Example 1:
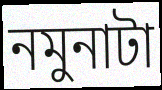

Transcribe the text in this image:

নমুনাটা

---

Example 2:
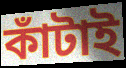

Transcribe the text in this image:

কাঁটাই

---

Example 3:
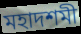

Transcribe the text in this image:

মহাদশমী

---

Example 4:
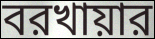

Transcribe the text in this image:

বরখায়ার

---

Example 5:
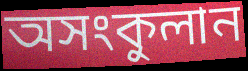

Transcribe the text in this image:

অসংকুলান